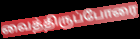
வைத்திருப்போரை